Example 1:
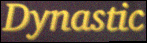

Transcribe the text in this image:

Dynastic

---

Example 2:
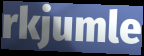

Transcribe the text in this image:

rkjumle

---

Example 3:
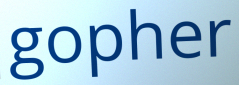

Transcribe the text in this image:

gopher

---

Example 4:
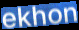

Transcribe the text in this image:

ekhon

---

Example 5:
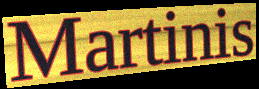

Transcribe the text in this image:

Martinis